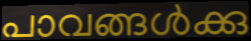
പാവങ്ങൾക്കു